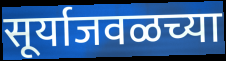
सूर्याजवळच्या